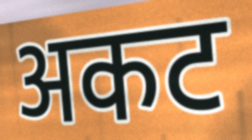
अकट